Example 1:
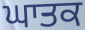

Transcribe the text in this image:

ਘਾਤਕ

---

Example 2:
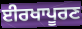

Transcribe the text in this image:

ਈਰਖਾਪੂਰਣ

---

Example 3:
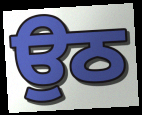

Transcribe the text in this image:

ਉਠ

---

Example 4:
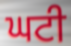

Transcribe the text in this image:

ਘਟੀ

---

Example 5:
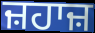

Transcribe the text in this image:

ਜ਼ਹਾਜ਼